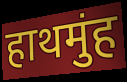
हाथमुंह